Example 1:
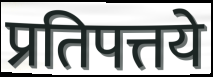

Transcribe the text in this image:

प्रतिपत्तये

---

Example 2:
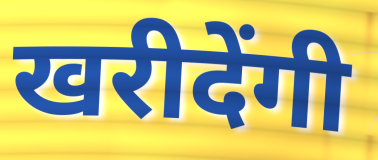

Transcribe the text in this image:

खरीदेंगी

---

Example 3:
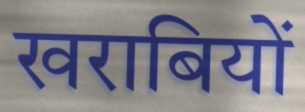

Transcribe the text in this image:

खराबियों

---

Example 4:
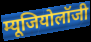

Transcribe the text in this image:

म्यूजियोलॉजी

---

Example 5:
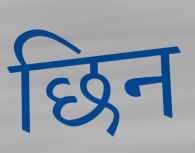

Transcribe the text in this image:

छिन